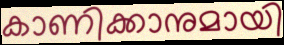
കാണിക്കാനുമായി